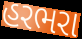
હરભરા